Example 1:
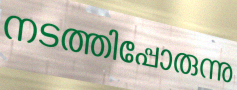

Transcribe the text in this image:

നടത്തിപ്പോരുന്നു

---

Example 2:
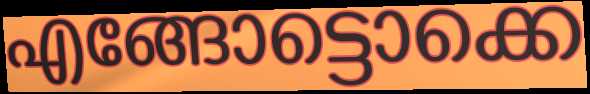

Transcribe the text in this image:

എങ്ങോട്ടൊക്കെ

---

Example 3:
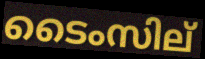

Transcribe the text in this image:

ടൈംസില്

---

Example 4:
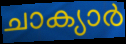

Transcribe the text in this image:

ചാക്യാർ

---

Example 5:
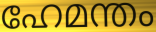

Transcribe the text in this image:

ഹേമന്തം